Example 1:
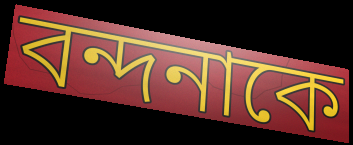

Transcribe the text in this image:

বন্দনাকে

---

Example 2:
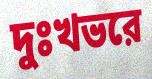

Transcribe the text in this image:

দুঃখভরে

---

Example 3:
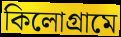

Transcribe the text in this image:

কিলোগ্রামে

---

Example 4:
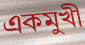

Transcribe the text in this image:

একমুখী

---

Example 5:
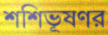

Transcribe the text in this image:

শশিভূষণর